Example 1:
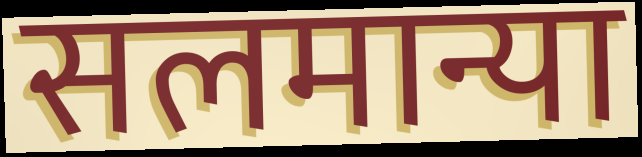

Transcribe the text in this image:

सलमान्या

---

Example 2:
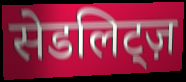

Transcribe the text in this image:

सेडलिट्ज़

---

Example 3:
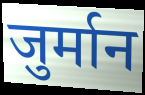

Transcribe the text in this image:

जुर्मान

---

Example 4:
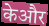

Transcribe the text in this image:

केऔर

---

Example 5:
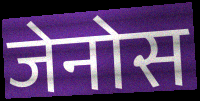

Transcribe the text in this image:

जेनोस